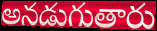
అనడుగుతారు